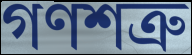
গণশত্রু